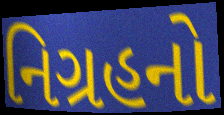
નિગ્રહનો